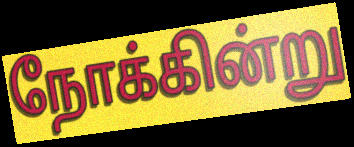
நோக்கின்று